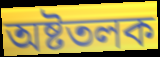
অষ্টতলক